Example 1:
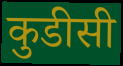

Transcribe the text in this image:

कुडीसी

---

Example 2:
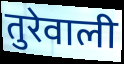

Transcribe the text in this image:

तुरेवाली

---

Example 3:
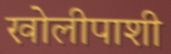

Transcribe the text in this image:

खोलीपाशी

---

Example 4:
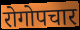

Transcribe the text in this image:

रोगोपचार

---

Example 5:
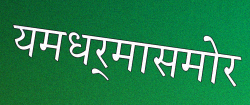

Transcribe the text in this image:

यमधर्मासमोर